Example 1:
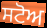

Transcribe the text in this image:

ਸਟੋਅ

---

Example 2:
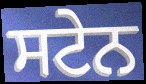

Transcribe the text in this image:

ਸਟੇਨ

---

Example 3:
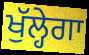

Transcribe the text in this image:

ਖੁੱਲ੍ਹੇਗਾ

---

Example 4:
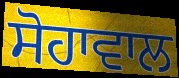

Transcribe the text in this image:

ਸੋਹਾਵਾਲ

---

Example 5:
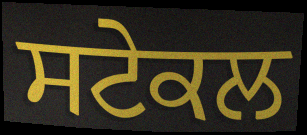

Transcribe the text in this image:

ਸਟੇਕਲ